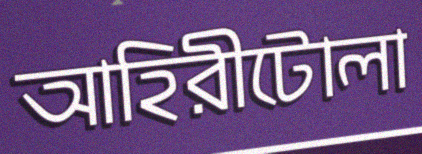
আহিরীটোলা